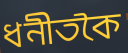
ধনীতকৈ